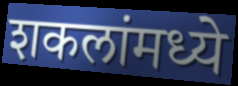
शकलांमध्ये